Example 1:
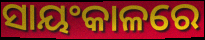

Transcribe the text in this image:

ସାୟଂକାଳରେ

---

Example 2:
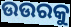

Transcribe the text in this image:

ଉଉରକୁ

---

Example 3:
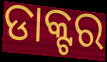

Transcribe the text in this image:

ଡାକ୍ଟର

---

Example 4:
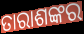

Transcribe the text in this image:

ତାରାଶଙ୍କର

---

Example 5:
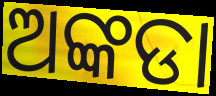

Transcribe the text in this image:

ଅଙ୍କଡା